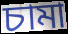
চামা